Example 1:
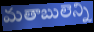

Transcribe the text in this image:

మతాబులెన్ని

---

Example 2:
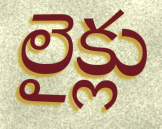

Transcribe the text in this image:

లైక్లు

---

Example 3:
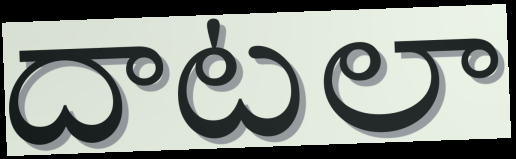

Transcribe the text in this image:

దాటలా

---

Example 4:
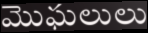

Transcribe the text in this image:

మొఘలులు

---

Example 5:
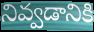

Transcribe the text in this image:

నివ్వడానికి